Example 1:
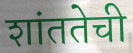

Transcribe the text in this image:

शांततेची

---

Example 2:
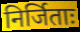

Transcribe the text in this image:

निर्जिताः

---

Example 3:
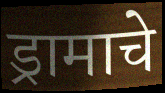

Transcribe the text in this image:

ड्रामाचे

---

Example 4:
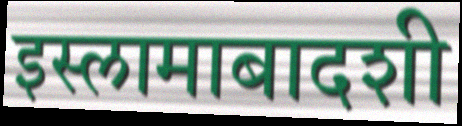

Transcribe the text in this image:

इस्लामाबादशी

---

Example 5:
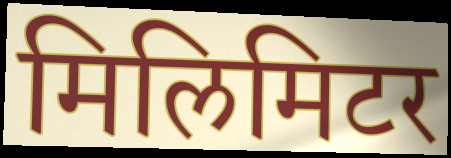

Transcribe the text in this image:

मिलिमिटर